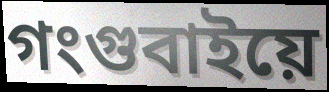
গংগুবাইয়ে